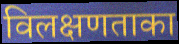
विलक्षणताका